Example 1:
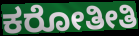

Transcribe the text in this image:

ಕರೋತೀತಿ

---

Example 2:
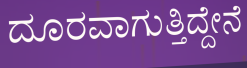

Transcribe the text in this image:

ದೂರವಾಗುತ್ತಿದ್ದೇನೆ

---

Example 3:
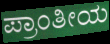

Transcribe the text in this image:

ಪ್ರಾಂತೀಯ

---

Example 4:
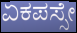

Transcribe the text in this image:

ಏಕಪಸ್ಸೇ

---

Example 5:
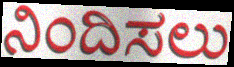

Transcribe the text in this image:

ನಿಂದಿಸಲು